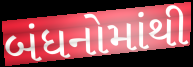
બંધનોમાંથી